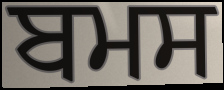
ਬਮਸ